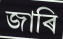
জাৰি